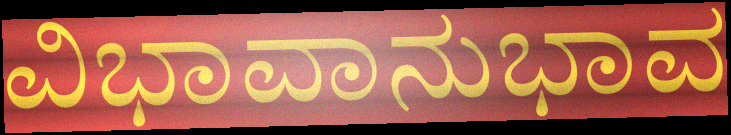
ವಿಭಾವಾನುಭಾವ